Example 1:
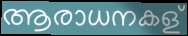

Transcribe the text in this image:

ആരാധനകള്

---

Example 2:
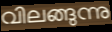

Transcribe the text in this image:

വിലങ്ങുന്നു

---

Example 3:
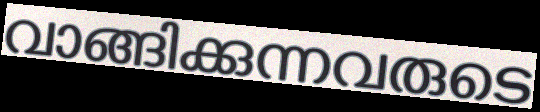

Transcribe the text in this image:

വാങ്ങിക്കുന്നവരുടെ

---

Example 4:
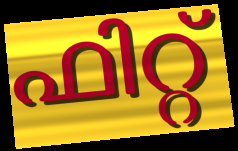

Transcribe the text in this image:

ഫിറ്റ്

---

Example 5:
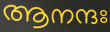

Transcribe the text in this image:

ആനന്ദഃ